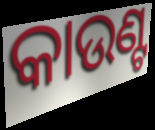
କାଉଣ୍ଟ